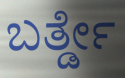
ಬರ್ತ್ಡೇ